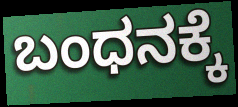
ಬಂಧನಕ್ಕೆ